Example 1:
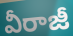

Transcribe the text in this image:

వీరాజీ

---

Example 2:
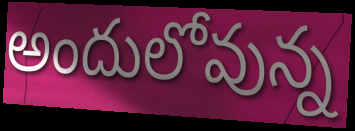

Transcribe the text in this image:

అందులోవున్న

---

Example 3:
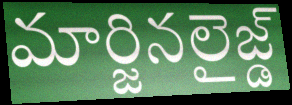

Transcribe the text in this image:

మార్జినలైజ్డ్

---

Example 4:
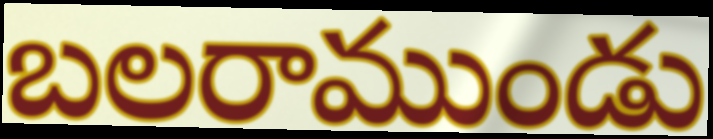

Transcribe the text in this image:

బలరాముండు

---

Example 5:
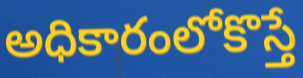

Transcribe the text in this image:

అధికారంలోకొస్తే